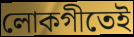
লোকগীতেই